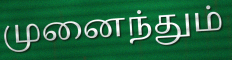
முனைந்தும்